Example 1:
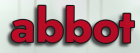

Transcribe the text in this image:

abbot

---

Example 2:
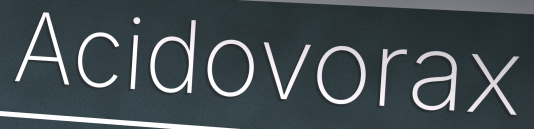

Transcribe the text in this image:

Acidovorax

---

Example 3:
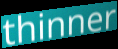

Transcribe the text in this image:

thinner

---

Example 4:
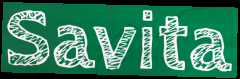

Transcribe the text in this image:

Savita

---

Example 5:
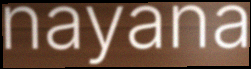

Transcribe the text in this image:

nayana